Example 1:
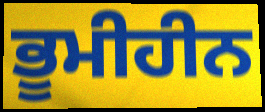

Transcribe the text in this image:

ਭੂਮੀਹੀਨ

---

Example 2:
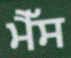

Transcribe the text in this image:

ਮੈੱਸ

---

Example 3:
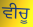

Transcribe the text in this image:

ਵੀਚੂ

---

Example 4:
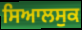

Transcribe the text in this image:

ਸਿਆਲਸੁਕ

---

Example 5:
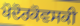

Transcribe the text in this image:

ਖੋਦੋਰਕੋਵਸਕੀ